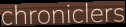
chroniclers